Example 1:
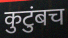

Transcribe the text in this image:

कुटुंबच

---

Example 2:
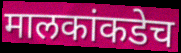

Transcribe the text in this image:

मालकांकडेच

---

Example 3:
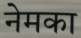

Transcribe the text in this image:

नेमका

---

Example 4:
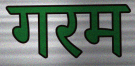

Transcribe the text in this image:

गरम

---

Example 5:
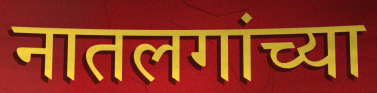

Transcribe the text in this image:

नातलगांच्या